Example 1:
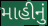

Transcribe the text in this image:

માહીનું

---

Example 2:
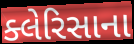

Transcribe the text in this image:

ક્લેરિસાના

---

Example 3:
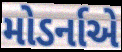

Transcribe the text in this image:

મોડર્નાએ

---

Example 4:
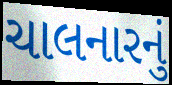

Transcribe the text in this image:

ચાલનારનું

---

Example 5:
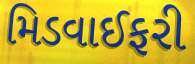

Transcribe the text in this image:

મિડવાઈફરી